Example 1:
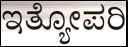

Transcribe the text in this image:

ಇತ್ಯೋಪರಿ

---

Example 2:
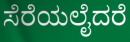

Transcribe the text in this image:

ಸೆರೆಯಲೈದರೆ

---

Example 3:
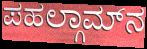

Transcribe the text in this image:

ಪಹಲ್ಗಾಮ್‌ನ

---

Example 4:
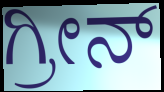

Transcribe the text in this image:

ಗ್ರೀನ್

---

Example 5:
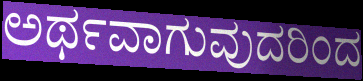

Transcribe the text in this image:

ಅರ್ಥವಾಗುವುದರಿಂದ